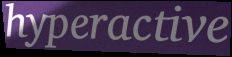
hyperactive